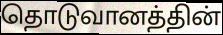
தொடுவானத்தின்